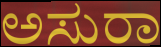
ಅಸುರಾ